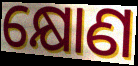
କ୍ଷୋଣ